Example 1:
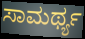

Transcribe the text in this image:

ಸಾಮರ್ಥ್ಯ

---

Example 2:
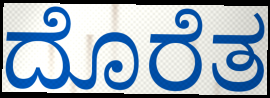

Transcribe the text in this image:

ದೊರೆತ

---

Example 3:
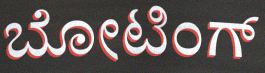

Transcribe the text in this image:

ಬೋಟಿಂಗ್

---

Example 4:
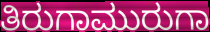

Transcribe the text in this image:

ತಿರುಗಾಮುರುಗಾ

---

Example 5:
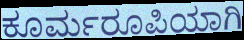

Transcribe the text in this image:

ಕೂರ್ಮರೂಪಿಯಾಗಿ